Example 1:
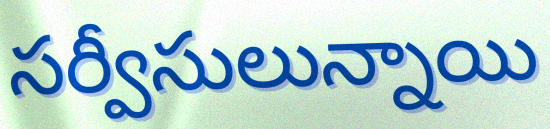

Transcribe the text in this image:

సర్వీసులున్నాయి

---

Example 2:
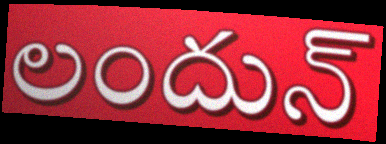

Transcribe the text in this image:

లందున్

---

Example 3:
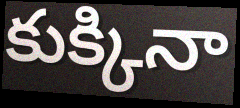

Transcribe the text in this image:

కుక్కినా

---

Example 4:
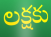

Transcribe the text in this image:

లక్షకు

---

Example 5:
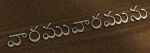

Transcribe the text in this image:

వారమువారమును